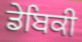
ਡੇਬਿਕੀ